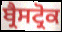
ਬ੍ਰੈਸਟ੍ਰੋਕ